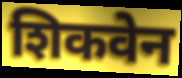
शिकवेन